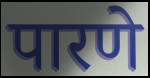
पारणे